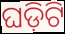
ଘଡ଼ିଟି